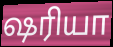
ஷரியா